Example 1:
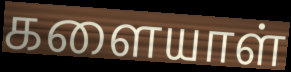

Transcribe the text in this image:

களையாள்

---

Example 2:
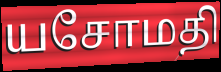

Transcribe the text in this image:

யசோமதி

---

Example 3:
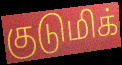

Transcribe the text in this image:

குடுமிக்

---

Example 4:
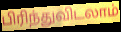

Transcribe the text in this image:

பிரிந்துவிடலாம்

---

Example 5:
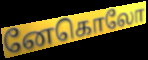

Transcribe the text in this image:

னேகொலோ